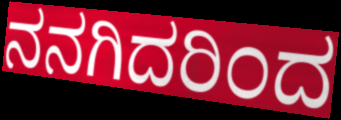
ನನಗಿದರಿಂದ